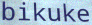
bikuke